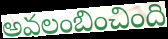
అవలంబించింది